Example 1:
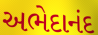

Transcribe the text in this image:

અભેદાનંદ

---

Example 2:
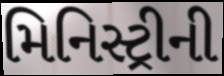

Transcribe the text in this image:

મિનિસ્ટ્રીની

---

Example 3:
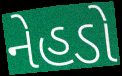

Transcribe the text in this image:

નેહડો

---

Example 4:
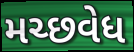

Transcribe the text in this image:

મચ્છવેધ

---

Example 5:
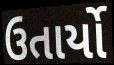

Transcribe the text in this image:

ઉતાર્યો